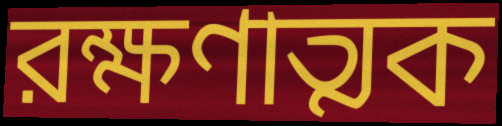
রক্ষণাত্মক